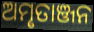
ଅମୃତାଞ୍ଜନ